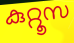
കുറ്റൂസ